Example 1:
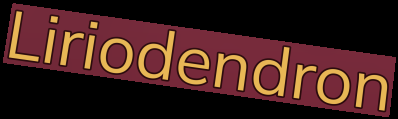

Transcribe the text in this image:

Liriodendron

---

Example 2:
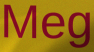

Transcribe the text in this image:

Meg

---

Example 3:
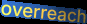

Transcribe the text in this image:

overreach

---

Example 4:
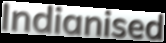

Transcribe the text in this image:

Indianised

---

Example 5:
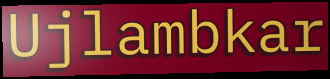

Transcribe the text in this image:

Ujlambkar